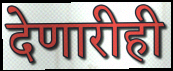
देणारीही